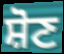
ਸ਼ੋਣ